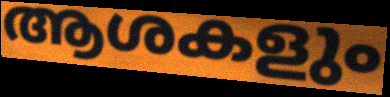
ആശകളും